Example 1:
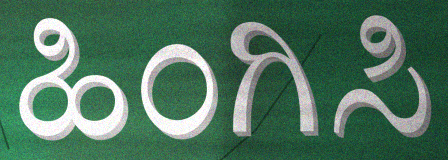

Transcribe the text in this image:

ಹಿಂಗಿಸಿ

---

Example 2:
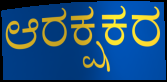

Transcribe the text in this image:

ಆರಕ್ಷಕರ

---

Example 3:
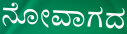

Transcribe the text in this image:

ನೋವಾಗದ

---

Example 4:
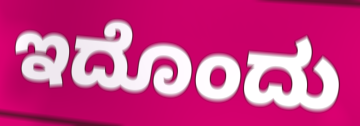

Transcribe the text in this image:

ಇದೊಂದು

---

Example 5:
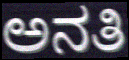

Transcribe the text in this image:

ಅನತಿ